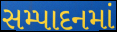
સમ્પાદનમાં